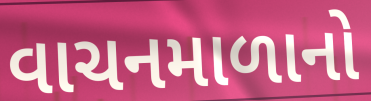
વાચનમાળાનો